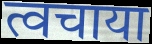
त्वचाया